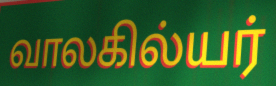
வாலகில்யர்